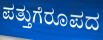
ಪತ್ತುಗೆರೂಪದ